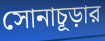
সোনাচূড়ার